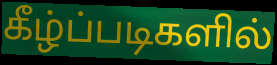
கீழ்ப்படிகளில்